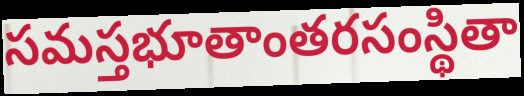
సమస్తభూతాంతరసంస్థితా